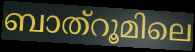
ബാത്റൂമിലെ